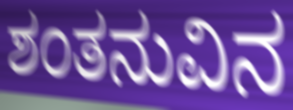
ಶಂತನುವಿನ